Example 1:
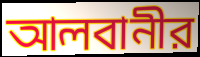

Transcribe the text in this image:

আলবানীর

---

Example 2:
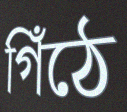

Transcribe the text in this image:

গিঁঠে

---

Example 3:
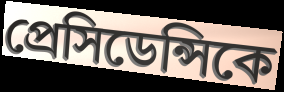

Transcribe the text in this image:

প্রেসিডেন্সিকে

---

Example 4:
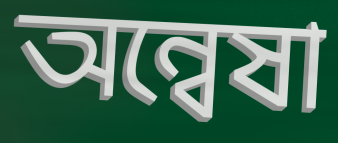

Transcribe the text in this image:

অন্বেষা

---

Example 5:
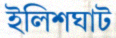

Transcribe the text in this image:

ইলিশঘাট